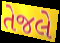
તેજલે